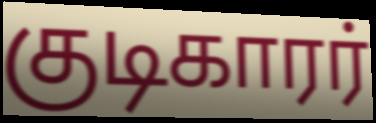
குடிகாரர்